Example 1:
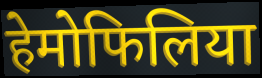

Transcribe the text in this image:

हेमोफिलिया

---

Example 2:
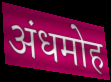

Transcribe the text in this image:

अंधमोह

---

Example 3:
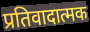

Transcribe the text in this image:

प्रतिवादात्मक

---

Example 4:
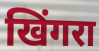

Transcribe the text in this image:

खिंगरा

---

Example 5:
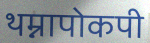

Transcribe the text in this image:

थम्नापोकपी